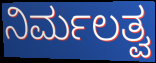
ನಿರ್ಮಲತ್ವ